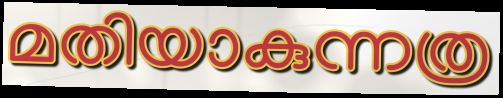
മതിയാകുന്നത്ര